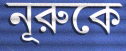
নূরুকে